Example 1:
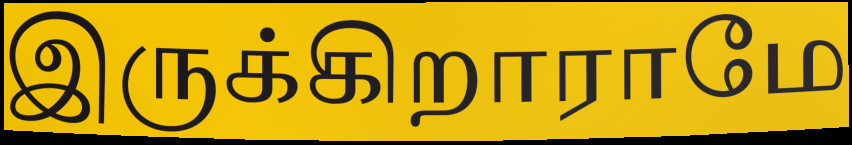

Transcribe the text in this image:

இருக்கிறாராமே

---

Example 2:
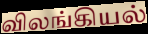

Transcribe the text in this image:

விலங்கியல்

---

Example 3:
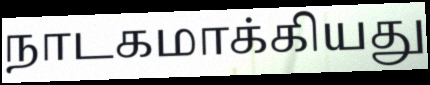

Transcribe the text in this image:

நாடகமாக்கியது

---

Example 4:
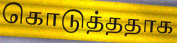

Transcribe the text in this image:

கொடுத்ததாக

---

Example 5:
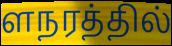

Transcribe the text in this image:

ளநரத்தில்